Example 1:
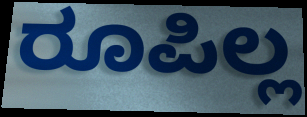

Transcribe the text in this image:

ರೂಪಿಲ್ಲ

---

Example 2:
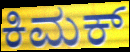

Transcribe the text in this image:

ಕಿಮಕ್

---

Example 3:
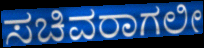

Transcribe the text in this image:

ಸಚಿವರಾಗಲೀ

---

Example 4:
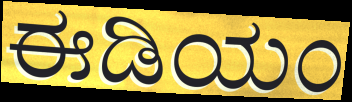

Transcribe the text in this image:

ಈಡಿಯಂ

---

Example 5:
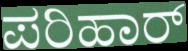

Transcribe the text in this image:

ಪರಿಹಾರ್